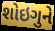
શોઇગુને